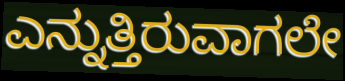
ಎನ್ನುತ್ತಿರುವಾಗಲೇ